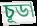
চূডা